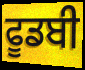
ਫੂਡਬੀ